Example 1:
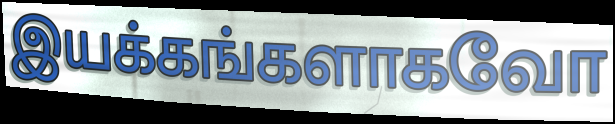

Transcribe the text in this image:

இயக்கங்களாகவோ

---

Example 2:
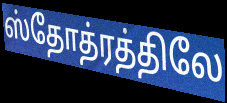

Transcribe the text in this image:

ஸ்தோத்ரத்திலே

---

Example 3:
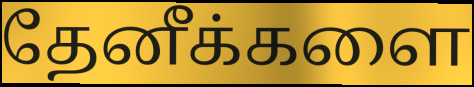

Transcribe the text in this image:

தேனீக்களை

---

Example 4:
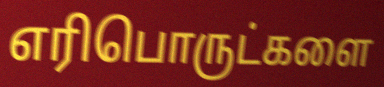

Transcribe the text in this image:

எரிபொருட்களை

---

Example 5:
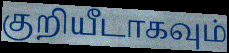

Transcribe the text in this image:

குறியீடாகவும்